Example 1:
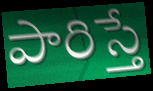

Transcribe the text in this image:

పారిస్తే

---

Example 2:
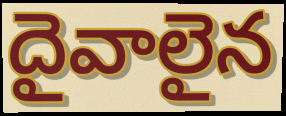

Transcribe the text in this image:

దైవాలైన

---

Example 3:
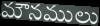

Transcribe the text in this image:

మౌనములు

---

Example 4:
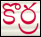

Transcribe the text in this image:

కొర్ర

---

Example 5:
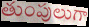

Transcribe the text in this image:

తుంపులుగా